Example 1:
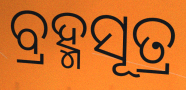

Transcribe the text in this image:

ବ୍ରହ୍ମସୂତ୍ର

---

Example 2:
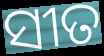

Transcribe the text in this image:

ସୀତ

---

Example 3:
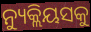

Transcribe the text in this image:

ନ୍ୟୁକ୍ଲିୟସକୁ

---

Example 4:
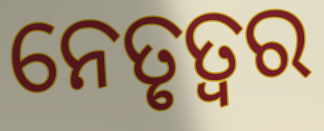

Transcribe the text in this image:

ନେତୃତ୍ୱର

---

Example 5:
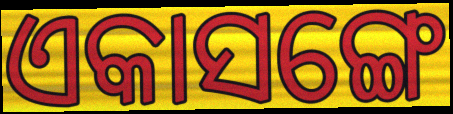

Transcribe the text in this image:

ଏକାସଙ୍ଗେ